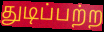
துடிப்பற்ற